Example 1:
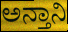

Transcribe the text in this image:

ಅನ್ತಾನಿ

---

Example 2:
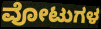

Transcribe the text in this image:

ವೋಟುಗಳ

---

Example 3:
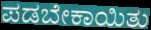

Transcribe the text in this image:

ಪಡಬೇಕಾಯಿತು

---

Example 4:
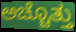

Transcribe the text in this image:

ಅಚ್ಚೊತ್ತು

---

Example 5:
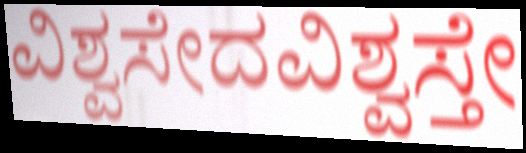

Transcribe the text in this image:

ವಿಶ್ವಸೇದವಿಶ್ವಸ್ತೇ